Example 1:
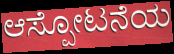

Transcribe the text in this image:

ಆಸ್ಪೋಟನೆಯ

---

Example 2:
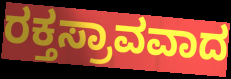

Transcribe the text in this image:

ರಕ್ತಸ್ರಾವವಾದ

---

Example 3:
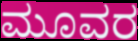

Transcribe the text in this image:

ಮೂವರ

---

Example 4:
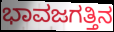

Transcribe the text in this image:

ಭಾವಜಗತ್ತಿನ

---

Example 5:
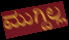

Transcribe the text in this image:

ಮುಗ್ದಿಲ್ಲ